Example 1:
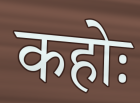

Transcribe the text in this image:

कहोः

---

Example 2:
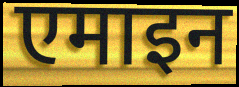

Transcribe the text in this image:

एमाइन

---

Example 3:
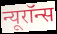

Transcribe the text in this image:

न्यूरॉन्स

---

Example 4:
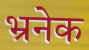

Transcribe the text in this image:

भ्रनेक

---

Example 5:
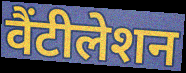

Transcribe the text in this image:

वैंटीलेशन